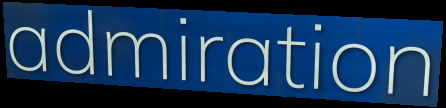
admiration